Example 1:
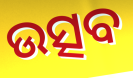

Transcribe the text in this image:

ଉତ୍ସବ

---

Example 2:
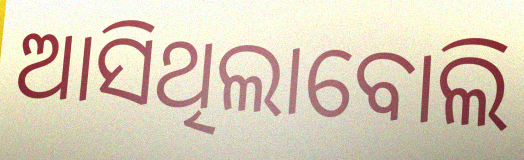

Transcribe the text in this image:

ଆସିଥିଲାବୋଲି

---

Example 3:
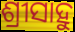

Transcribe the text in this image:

ଶ୍ରୀସାହୁ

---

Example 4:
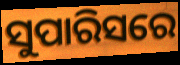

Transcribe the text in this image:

ସୁପାରିସରେ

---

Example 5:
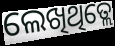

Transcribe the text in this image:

ଲେଖିଥିତ୍ଲେ